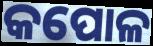
କପୋଳ